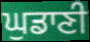
ਘੁਡਾਣੀ